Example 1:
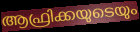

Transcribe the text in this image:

ആഫ്രിക്കയുടെയും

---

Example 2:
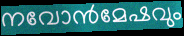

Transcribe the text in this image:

നവോൻമേഷവും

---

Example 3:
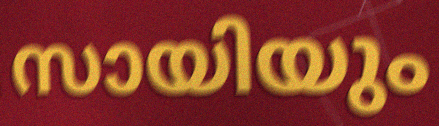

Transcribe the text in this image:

സായിയും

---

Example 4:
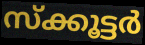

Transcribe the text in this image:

സ്ക്കൂട്ടർ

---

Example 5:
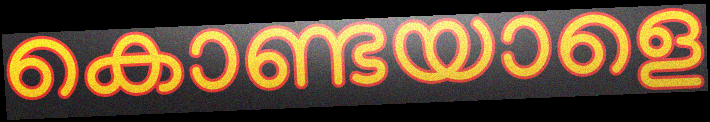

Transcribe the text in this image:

കൊണ്ടയാളെ